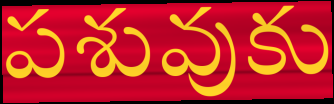
పశువుకు